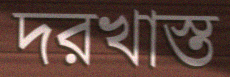
দরখাস্ত